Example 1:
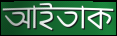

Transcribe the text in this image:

আইতাক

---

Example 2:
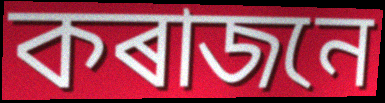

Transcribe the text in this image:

কৰাজনে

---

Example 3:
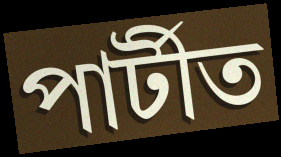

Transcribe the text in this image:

পাৰ্টীত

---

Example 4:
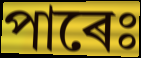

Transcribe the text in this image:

পাৰেঃ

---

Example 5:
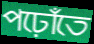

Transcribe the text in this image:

পঢ়োঁতে